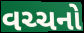
વચ્ચનો